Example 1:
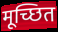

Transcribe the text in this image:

मूच्छित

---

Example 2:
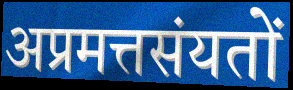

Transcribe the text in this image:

अप्रमत्तसंयतों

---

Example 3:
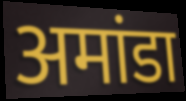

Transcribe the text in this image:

अमांडा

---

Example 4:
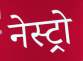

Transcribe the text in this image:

नेस्ट्रो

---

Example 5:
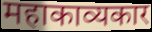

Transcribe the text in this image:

महाकाव्यकार